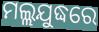
ମଲ୍ଲଯୁଦ୍ଧରେ